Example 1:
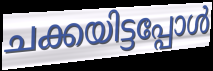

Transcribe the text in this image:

ചക്കയിട്ടപ്പോൾ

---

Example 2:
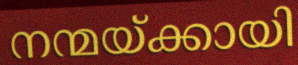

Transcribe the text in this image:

നന്മയ്ക്കായി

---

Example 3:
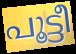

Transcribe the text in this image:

പൂട്ടീ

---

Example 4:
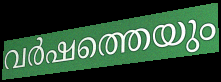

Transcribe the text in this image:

വർഷത്തെയും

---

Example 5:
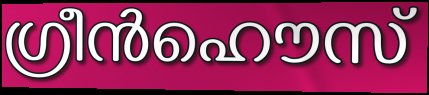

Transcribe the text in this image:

ഗ്രീൻഹൌസ്